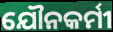
ଯୌନକର୍ମୀ